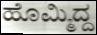
ಹೊಮ್ಮಿದ್ದ